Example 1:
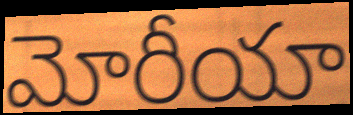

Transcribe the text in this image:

మోరీయా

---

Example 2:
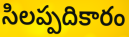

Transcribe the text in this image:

సిలప్పదికారం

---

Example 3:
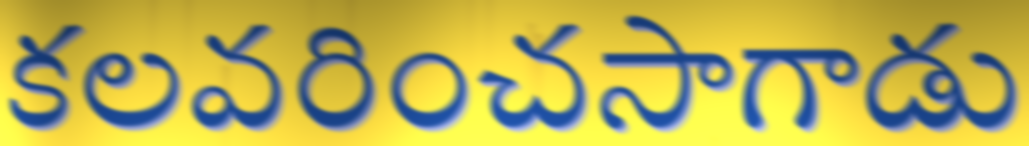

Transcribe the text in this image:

కలవరించసాగాడు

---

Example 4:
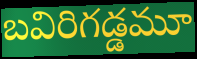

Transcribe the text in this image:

బవిరిగడ్డమూ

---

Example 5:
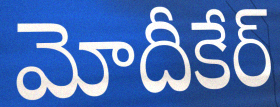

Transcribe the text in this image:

మోదీకేర్